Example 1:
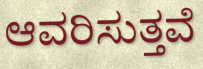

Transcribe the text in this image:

ಆವರಿಸುತ್ತವೆ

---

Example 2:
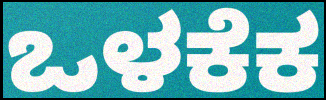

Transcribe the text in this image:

ಒಳಕೆಕ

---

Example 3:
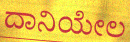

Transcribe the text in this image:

ದಾನಿಯೇಲ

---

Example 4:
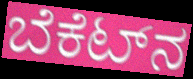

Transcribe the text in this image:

ಬೆಕೆಟ್‌ನ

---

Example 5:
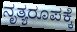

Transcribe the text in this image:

ನೃತ್ಯರೂಪಕ್ಕೆ